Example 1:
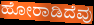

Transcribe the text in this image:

ಹೋರಾಡಿದೆವು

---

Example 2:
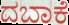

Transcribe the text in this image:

ದಬಾಕೆ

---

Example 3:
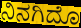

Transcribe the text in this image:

ನಿನಗಿದೊ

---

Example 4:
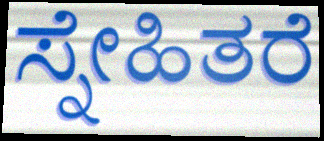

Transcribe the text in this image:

ಸ್ನೇಹಿತರೆ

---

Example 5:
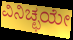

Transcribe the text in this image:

ವಿನಿಚ್ಛಯೇ